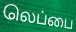
லெப்பை